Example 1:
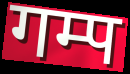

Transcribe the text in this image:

गम्प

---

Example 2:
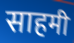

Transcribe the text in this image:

साहमी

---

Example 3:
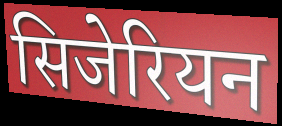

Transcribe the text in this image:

सिजेरियन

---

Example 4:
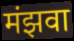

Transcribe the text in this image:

मंझवा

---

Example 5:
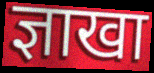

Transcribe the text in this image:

ज्ञाखा